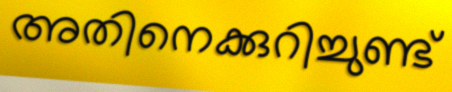
അതിനെക്കുറിച്ചുണ്ട്